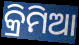
କ୍ରିମିଆ